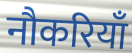
नौकरियाँ